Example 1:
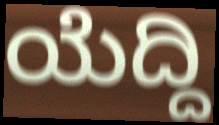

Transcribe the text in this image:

ಯೆದ್ದಿ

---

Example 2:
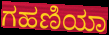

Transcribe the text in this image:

ಗಹಣಿಯಾ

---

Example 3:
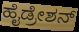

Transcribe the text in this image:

ಹೈಡ್ರೇಶನ್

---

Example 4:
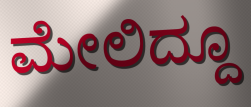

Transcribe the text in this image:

ಮೇಲಿದ್ದೂ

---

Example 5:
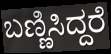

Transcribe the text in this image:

ಬಣ್ಣಿಸಿದ್ದರೆ